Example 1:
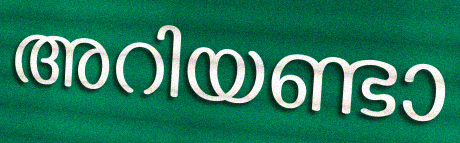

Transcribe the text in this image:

അറിയണ്ടാ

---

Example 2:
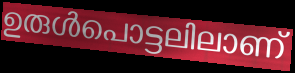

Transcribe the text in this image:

ഉരുൾപൊട്ടലിലാണ്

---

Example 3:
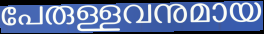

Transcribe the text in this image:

പേരുള്ളവനുമായ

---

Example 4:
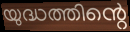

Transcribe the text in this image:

യുദ്ധത്തിന്റെ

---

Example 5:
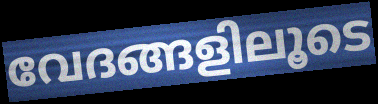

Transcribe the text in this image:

വേദങ്ങളിലൂടെ